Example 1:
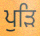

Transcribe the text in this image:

ਪੁੜਿ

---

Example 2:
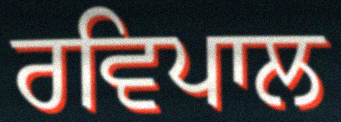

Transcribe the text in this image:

ਰਵਿਪਾਲ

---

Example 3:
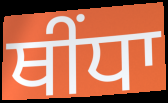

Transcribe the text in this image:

ਥੀਂਧਾ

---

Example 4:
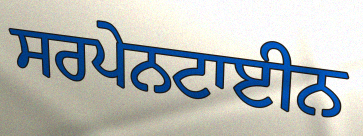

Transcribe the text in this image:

ਸਰਪੇਨਟਾਈਨ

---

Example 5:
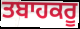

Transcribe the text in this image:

ਤਬਾਹਕਰੂ